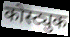
कोस्ट्युक